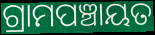
ଗ୍ରାମପଞ୍ଚାୟତ